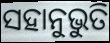
ସହାନୁଭୁତି